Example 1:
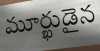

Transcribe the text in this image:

మూర్ఖుడైన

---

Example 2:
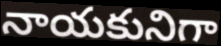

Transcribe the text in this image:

నాయకునిగా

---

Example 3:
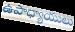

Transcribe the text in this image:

ఉపాధ్యాయులు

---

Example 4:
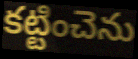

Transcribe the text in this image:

కట్టించెను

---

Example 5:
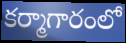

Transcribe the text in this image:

కర్మాగారంలో